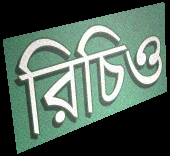
রিচিও